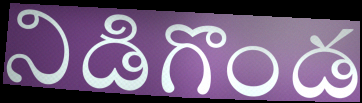
నిడిగొండ